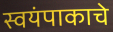
स्वयंपाकाचे